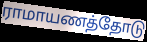
ராமாயணத்தோடு